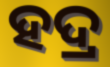
ହଦ୍ର